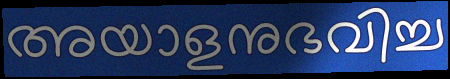
അയാളനുഭവിച്ച